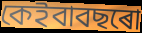
কেইবাবছৰো